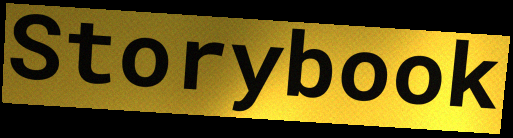
Storybook